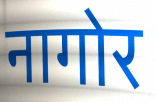
नागोर